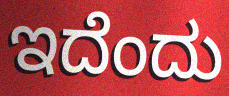
ಇದೆಂದು